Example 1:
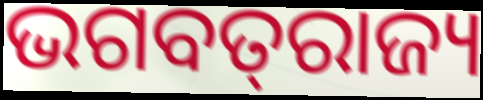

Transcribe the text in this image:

ଭଗବତ୍‌ରାଜ୍ୟ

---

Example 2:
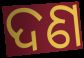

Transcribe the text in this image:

ଦଣ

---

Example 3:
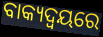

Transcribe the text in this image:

ବାକ୍ୟଦ୍ଵୟରେ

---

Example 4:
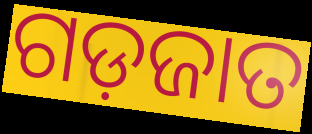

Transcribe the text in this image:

ଗଡ଼ଜାତ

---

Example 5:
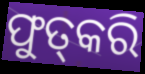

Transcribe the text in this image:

ଫୁତ୍‌କରି